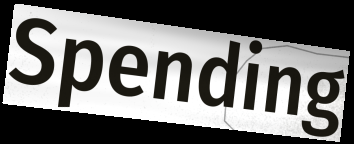
Spending